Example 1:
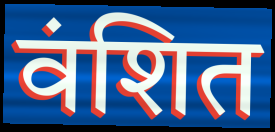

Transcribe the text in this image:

वंशित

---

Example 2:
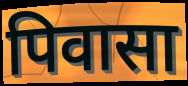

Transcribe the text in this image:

पिवासा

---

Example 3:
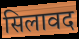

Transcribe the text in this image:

सिलावद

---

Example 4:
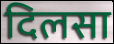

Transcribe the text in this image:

दिलसा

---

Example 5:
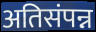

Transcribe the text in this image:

अतिसंपन्न